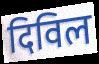
दिविल